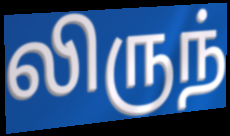
லிருந்